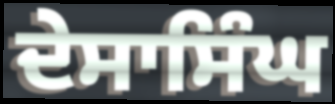
ਦੇਸਾਸਿੰਘ